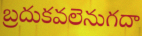
బ్రదుకవలెనుగదా